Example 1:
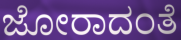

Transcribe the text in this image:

ಜೋರಾದಂತೆ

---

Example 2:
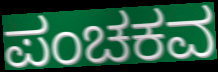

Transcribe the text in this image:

ಪಂಚಕವ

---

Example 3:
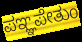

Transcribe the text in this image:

ಪಞ್ಞಪೇತುಂ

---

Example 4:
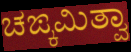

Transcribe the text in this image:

ಚಙ್ಕಮಿತ್ವಾ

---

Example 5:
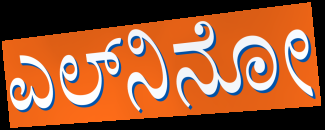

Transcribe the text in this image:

ಎಲ್‍ನಿನೋ